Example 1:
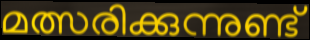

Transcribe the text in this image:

മത്സരിക്കുന്നുണ്ട്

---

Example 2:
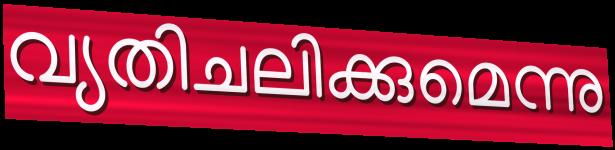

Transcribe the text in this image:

വ്യതിചലിക്കുമെന്നു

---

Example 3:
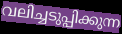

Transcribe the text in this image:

വലിച്ചടുപ്പിക്കുന്ന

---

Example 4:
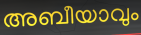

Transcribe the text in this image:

അബീയാവും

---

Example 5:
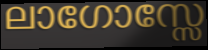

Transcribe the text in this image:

ലാഗോസ്സേ